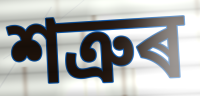
শত্ৰুৰ